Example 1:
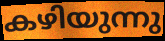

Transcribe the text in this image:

കഴിയുന്നു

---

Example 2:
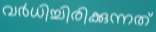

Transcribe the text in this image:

വർധിച്ചിരിക്കുന്നത്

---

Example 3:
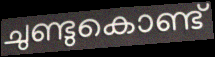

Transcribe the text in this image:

ചുണ്ടുകൊണ്ട്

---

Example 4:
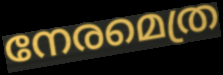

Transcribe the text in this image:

നേരമെത്ര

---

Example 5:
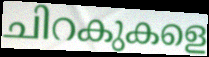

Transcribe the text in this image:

ചിറകുകളെ